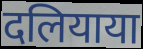
दलियाया